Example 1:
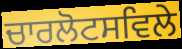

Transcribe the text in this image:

ਚਾਰਲੋਟਸਵਿਲੇ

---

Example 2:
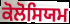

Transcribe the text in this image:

ਕੋਲੋਸਿਯਮ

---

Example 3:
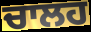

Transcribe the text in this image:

ਚਾਲਹ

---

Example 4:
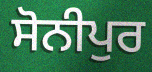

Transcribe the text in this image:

ਸੋਨੀਪੁਰ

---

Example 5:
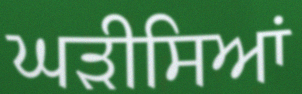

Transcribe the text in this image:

ਘੜੀਸਿਆਂ